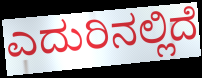
ಎದುರಿನಲ್ಲಿದೆ